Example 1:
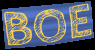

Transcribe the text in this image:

BOE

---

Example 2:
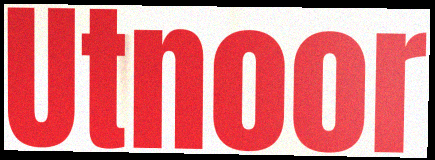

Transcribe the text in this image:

Utnoor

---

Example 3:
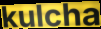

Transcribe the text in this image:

kulcha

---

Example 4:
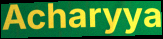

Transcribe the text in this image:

Acharyya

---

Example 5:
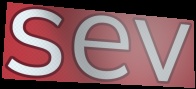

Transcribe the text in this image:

sev